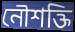
নৌশক্তি